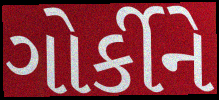
ગોર્કીને